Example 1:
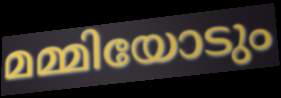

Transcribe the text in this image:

മമ്മിയോടും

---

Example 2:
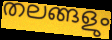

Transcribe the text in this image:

തലങ്ങളും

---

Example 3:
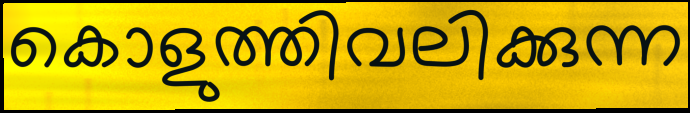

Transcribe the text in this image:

കൊളുത്തിവലിക്കുന്ന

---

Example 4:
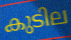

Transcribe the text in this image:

കുടില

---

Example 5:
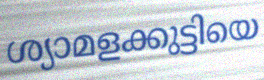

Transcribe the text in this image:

ശ്യാമളക്കുട്ടിയെ